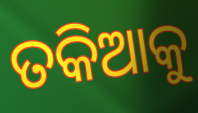
ତକିଆକୁ